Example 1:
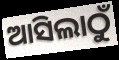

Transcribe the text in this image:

ଆସିଲାଠୁଁ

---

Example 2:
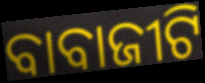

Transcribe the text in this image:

ବାବାଜୀଟି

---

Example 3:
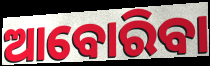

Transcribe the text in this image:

ଆବୋରିବା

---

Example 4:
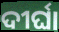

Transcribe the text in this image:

ଦୀର୍ଘା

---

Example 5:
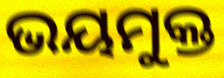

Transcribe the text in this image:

ଭୟମୁକ୍ତ